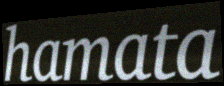
hamata